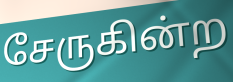
சேருகின்ற